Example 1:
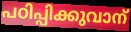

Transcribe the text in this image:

പഠിപ്പിക്കുവാന്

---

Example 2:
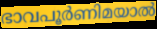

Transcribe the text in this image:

ഭാവപൂർണിമയാൽ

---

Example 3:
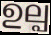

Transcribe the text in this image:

ഉല്പ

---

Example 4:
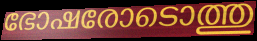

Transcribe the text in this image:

ഭോഷരോടൊത്തു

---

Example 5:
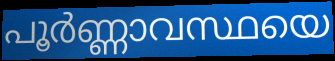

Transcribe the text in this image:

പൂർണ്ണാവസ്ഥയെ